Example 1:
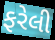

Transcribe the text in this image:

ફરેલી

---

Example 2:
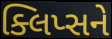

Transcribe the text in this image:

ક્લિપ્સને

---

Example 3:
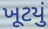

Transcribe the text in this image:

ખૂટયું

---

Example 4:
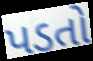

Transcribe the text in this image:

પડતો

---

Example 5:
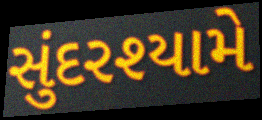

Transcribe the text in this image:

સુંદરશ્યામે